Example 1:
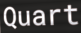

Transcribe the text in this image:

Quart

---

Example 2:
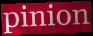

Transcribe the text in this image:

pinion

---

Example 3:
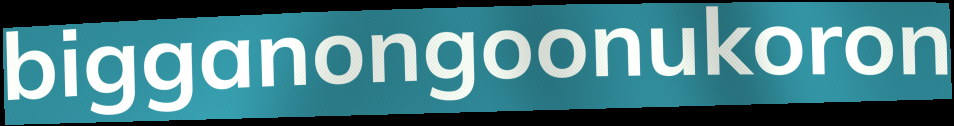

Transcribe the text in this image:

bigganongoonukoron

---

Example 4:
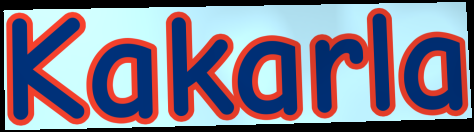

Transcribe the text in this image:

Kakarla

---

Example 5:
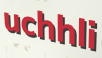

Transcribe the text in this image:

uchhli